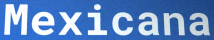
Mexicana